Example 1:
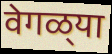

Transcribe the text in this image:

वेगळ्‌या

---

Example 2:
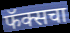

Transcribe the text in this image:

फॅक्सचा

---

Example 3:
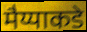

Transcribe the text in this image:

मैय्याकडे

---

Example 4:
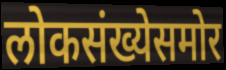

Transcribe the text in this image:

लोकसंख्येसमोर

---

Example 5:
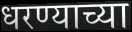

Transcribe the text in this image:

धरण्याच्या